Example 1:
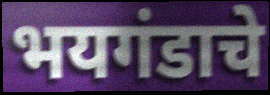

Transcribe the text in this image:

भयगंडाचे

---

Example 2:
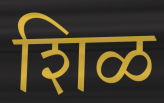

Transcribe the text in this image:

शिळ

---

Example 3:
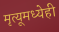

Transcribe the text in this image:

मृत्यूमध्येही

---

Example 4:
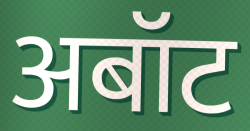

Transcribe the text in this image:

अबॉट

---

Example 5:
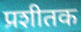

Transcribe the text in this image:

प्रशीतक